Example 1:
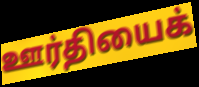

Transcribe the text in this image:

ஊர்தியைக்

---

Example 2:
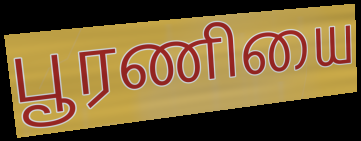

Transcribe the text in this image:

பூரணியை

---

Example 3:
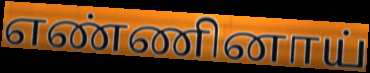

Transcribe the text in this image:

எண்ணினாய்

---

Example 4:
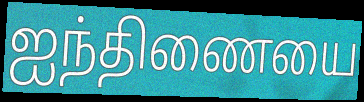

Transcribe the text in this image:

ஐந்திணையை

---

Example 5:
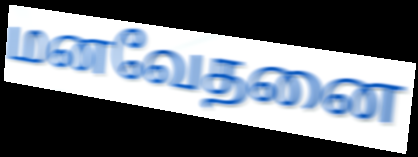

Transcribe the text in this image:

மனவேதனை